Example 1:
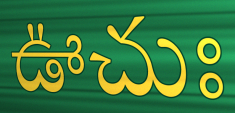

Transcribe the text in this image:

ఊచుః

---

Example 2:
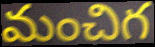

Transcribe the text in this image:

మంచిగ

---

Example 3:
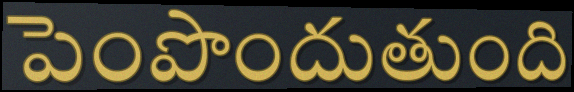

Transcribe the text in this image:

పెంపొందుతుంది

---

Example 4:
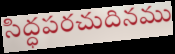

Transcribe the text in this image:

సిద్ధపరచుదినము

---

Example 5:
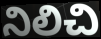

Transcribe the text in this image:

నిలిచి